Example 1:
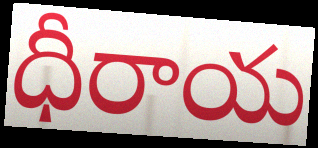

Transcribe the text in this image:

ధీరాయ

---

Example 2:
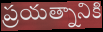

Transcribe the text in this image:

ప్రయత్నానికి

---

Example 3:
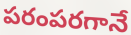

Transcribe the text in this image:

పరంపరగానే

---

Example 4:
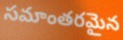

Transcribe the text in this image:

సమాంతరమైన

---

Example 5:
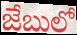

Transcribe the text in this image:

జేబులో